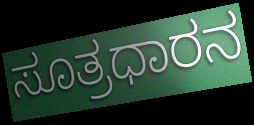
ಸೂತ್ರಧಾರನ